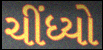
ચીંધ્યો